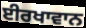
ਈਰਖਾਵਾਨ